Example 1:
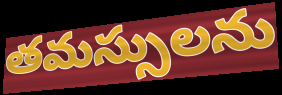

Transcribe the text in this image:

తమస్సులను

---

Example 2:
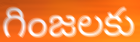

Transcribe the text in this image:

గింజలకు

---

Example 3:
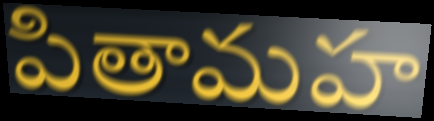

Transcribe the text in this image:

పితామహ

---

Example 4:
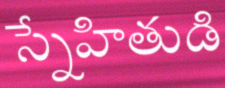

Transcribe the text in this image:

స్నేహితుడి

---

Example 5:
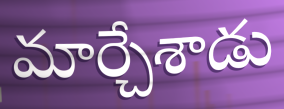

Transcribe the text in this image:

మార్చేశాడు